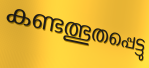
കണ്ടത്ഭുതപ്പെട്ടു